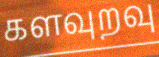
களவுறவு